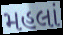
મહલાં